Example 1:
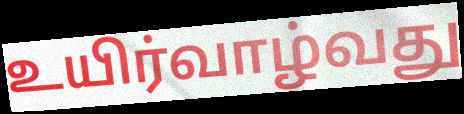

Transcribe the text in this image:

உயிர்வாழ்வது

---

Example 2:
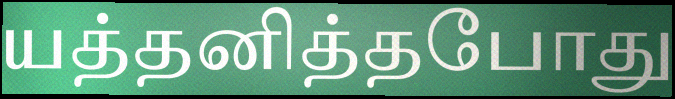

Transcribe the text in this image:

யத்தனித்தபோது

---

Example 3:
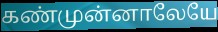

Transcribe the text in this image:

கண்முன்னாலேயே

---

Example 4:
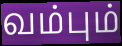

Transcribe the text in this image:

வம்பும்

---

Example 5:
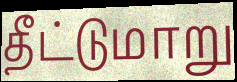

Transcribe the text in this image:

தீட்டுமாறு